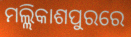
ମଲ୍ଲିକାଶପୁରରେ